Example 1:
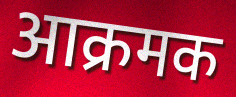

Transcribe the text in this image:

आक्रमक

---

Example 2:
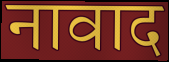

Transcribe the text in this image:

नावाद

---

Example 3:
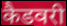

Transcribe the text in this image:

कैडवरी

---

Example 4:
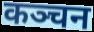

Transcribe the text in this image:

कञ्चन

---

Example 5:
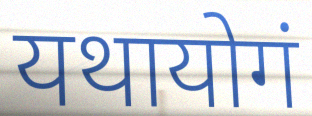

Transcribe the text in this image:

यथायोगं